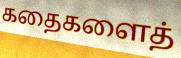
கதைகளைத்